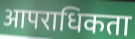
आपराधिकता